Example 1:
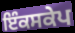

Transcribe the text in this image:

ਇੰਕਸਕੇਪ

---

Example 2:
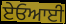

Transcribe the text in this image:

ਏਓਆਈ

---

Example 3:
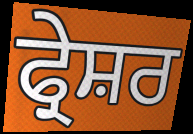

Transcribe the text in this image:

ਫ੍ਰੇਸ਼ਰ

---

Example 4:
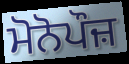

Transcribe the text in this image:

ਮੋਨੋਪੌਜ਼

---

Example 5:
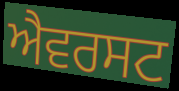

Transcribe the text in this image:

ਐਵਰਸਟ